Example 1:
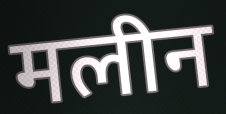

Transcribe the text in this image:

मलीन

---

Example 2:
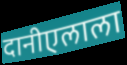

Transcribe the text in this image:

दानीएलाला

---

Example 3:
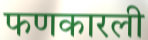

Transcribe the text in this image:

फणकारली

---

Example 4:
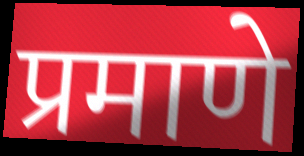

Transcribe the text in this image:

प्रमाणे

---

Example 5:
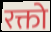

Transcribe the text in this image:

रक्तो